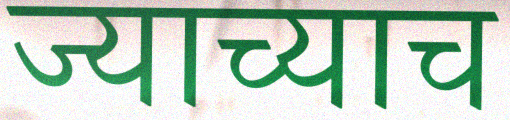
ज्याच्याच